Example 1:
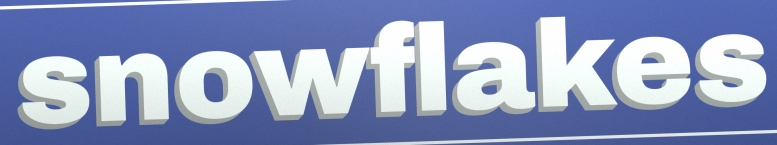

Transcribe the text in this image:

snowflakes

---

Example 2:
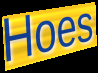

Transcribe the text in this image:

Hoes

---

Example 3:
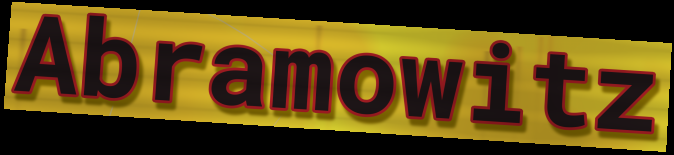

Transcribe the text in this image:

Abramowitz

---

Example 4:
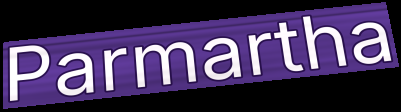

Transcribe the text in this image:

Parmartha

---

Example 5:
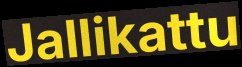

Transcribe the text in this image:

Jallikattu